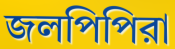
জলপিপিরা